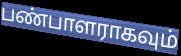
பண்பாளராகவும்